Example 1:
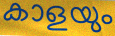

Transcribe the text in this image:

കാളയും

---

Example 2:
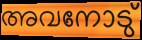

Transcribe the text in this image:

അവനോടു്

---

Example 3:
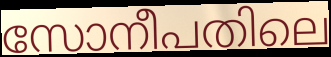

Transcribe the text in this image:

സോനീപതിലെ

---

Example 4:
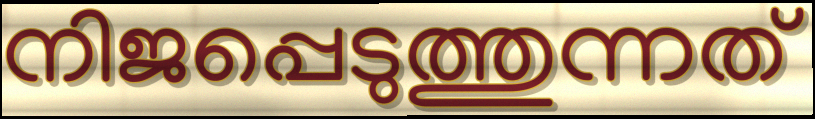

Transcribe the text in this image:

നിജപ്പെടുത്തുന്നത്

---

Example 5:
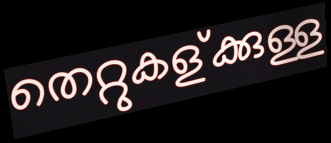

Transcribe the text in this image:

തെറ്റുകള്ക്കുള്ള